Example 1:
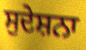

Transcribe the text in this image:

ਸੁਦੇਸ਼ਨਾ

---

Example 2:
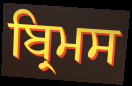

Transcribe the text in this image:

ਬ੍ਰਿਮਸ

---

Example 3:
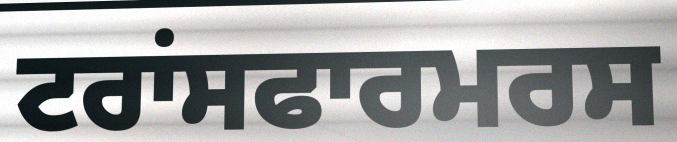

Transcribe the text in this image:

ਟਰਾਂਸਫਾਰਮਰਸ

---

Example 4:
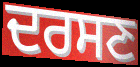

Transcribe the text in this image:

ਦਰਸਣ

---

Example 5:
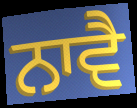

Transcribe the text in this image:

ਨਾਵੈ